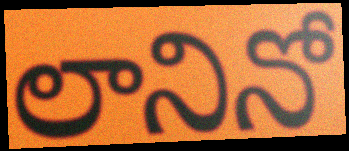
లానినో